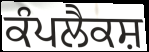
ਕੰਪਲੈਕਸ਼